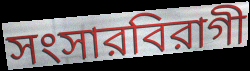
সংসারবিরাগী